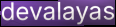
devalayas